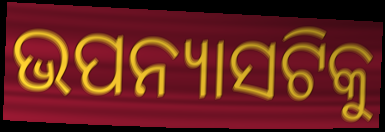
ଭପନ୍ୟାସଟିକୁ